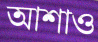
আশাও